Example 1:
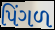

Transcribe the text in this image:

પિંગળ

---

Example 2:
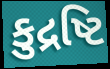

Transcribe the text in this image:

કુદ્રષ્ટિ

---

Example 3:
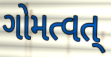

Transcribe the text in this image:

ગોમત્વત્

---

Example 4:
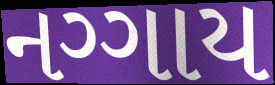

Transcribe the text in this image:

નગ્ગાય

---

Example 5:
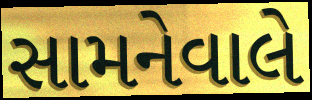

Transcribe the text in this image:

સામનેવાલે